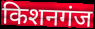
किशनगंज